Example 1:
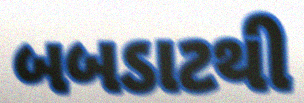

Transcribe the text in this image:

બબડાટથી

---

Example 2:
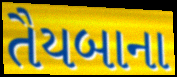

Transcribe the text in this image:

તૈયબાના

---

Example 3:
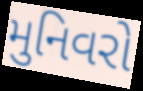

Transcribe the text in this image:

મુનિવરો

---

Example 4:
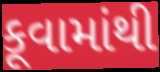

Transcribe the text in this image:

કૂવામાંથી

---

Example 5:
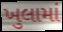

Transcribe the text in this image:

ખુલામાં